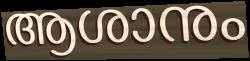
ആശാനും